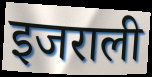
इजराली